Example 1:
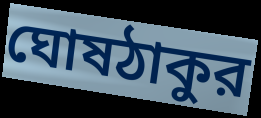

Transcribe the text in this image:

ঘোষঠাকুর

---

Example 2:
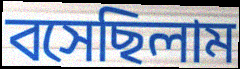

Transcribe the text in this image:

বসেছিলাম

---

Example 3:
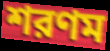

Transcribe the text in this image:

শরণম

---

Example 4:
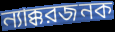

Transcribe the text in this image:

ন্যাক্করজনক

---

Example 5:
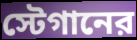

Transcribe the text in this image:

স্টেগানের